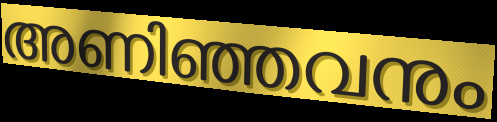
അണിഞ്ഞവനും